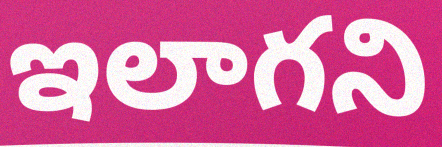
ఇలాగని